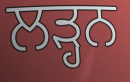
ਲੜ੍ਹਨ